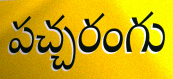
పచ్చరంగు